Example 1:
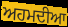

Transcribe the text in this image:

ਅਹਮਦੀਆ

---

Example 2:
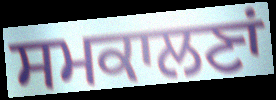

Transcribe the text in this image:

ਸਮਕਾਲਣਾਂ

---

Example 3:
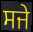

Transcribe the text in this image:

ਸਜੇ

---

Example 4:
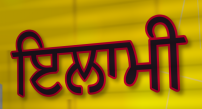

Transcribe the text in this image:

ਇਲਾਮੀ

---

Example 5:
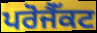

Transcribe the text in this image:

ਪਰੋਜੈੱਕਟ